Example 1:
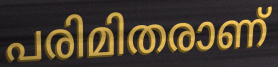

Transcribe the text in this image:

പരിമിതരാണ്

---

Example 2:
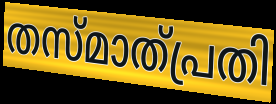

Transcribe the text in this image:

തസ്മാത്പ്രതി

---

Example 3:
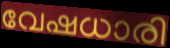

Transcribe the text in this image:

വേഷധാരി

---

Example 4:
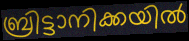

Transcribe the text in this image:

ബ്രിട്ടാനിക്കയിൽ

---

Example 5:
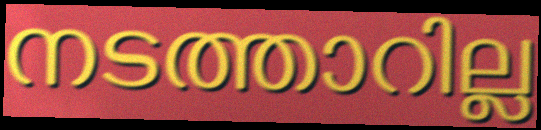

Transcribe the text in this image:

നടത്താറില്ല